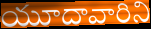
యూదావారిని